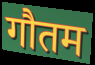
गौतम